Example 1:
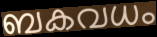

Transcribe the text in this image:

ബകവധം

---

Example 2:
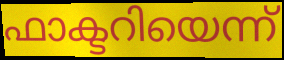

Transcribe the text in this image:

ഫാക്ടറിയെന്ന്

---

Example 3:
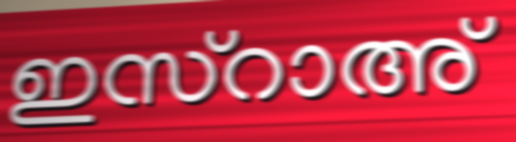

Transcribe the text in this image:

ഇസ്റാഅ്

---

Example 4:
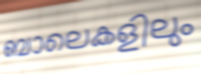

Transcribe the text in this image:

ബാലെകളിലും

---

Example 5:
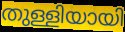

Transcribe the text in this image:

തുള്ളിയായി